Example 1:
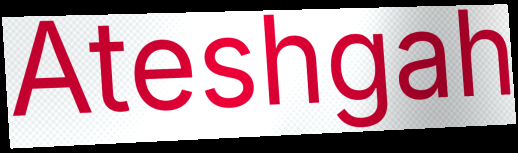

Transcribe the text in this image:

Ateshgah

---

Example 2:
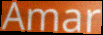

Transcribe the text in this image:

Amar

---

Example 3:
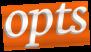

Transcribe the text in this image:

opts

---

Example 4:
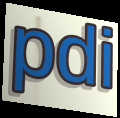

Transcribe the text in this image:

pdi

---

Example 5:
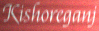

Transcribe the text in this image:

Kishoreganj